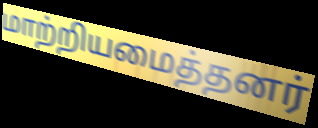
மாற்றியமைத்தனர்